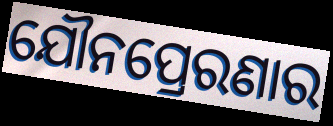
ଯୌନପ୍ରେରଣାର